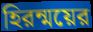
হিরন্ময়ের